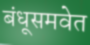
बंधूसमवेत